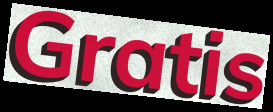
Gratis